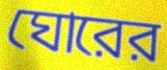
ঘোরের